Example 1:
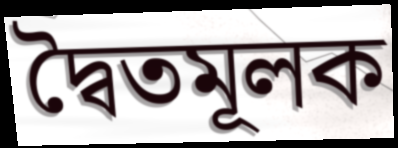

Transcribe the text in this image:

দ্বৈতমূলক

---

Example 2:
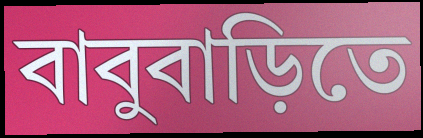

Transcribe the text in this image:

বাবুবাড়িতে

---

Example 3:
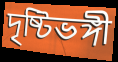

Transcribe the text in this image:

দৃষ্টিভঙ্গী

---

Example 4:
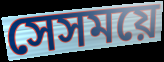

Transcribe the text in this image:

সেসময়ে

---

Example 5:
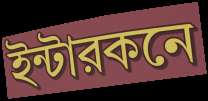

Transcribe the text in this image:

ইন্টারকনে